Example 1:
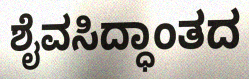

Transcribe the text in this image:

ಶೈವಸಿದ್ಧಾಂತದ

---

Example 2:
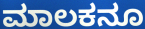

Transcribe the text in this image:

ಮಾಲಕನೂ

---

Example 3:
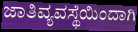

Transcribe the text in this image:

ಜಾತಿವ್ಯವಸ್ಥೆಯಿಂದಾಗಿ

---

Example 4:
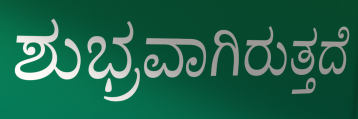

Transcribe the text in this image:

ಶುಭ್ರವಾಗಿರುತ್ತದೆ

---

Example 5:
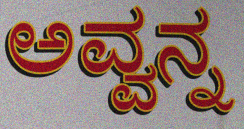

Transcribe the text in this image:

ಅವ್ವನ್ನ